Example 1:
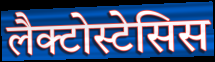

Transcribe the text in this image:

लैक्टोस्टेसिस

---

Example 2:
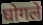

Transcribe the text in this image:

घोगले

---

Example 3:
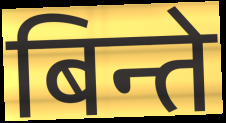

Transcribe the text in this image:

बिन्ते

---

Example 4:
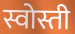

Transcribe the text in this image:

स्वोस्ती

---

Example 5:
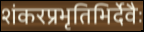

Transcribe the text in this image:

शंकरप्रभृतिभिर्देवैः